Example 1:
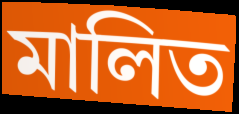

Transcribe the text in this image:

মালিত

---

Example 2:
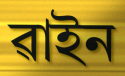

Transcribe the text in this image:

ৱাইন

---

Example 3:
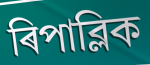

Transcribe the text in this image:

ৰিপাব্লিক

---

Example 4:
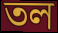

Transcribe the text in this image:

তল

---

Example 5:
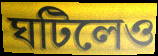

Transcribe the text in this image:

ঘটিলেও